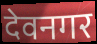
देवनगर